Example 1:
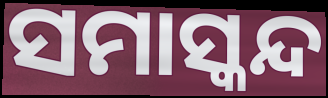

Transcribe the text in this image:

ସମାସ୍କନ୍ଦ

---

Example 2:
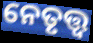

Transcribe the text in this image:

ନେତୃତ୍ତ୍ୱ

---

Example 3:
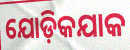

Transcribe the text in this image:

ଯୋଡ଼ିକଯାକ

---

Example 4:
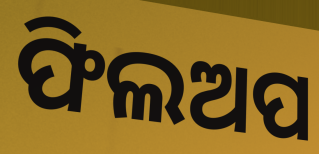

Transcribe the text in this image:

ଫିଲଅପ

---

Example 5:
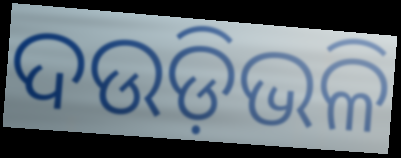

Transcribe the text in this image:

ଦଉଡ଼ିଭଳି